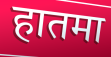
हातमा